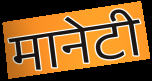
मानेटी